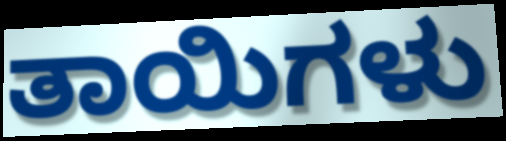
ತಾಯಿಗಳು